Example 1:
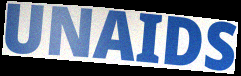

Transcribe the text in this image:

UNAIDS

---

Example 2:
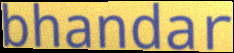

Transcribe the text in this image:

bhandar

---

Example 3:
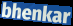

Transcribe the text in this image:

bhenkar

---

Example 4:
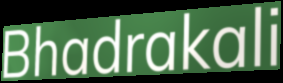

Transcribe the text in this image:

Bhadrakali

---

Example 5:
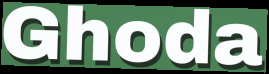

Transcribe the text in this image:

Ghoda